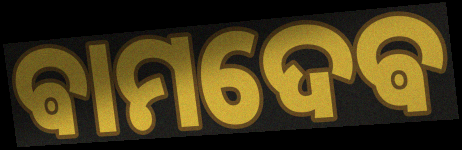
ଵାମଦେଵ